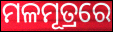
ମଳମୂତ୍ରରେ